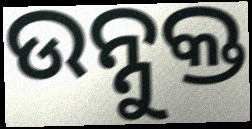
ଉନ୍ନୁକ୍ତ